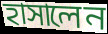
হাসালেন